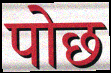
पोछ